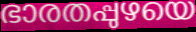
ഭാരതപ്പുഴയെ